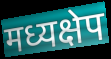
मध्यक्षेप